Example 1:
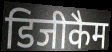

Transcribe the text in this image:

डिजीकैम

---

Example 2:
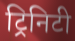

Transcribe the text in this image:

ट्रिनिटी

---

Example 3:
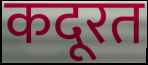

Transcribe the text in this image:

कदूरत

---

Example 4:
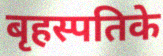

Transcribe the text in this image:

बृहस्पतिके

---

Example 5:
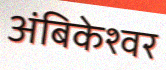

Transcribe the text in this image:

अंबिकेश्वर